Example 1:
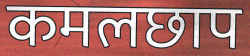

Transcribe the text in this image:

कमलछाप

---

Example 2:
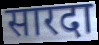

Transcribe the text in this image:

सारदा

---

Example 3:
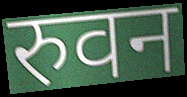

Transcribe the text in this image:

रुवन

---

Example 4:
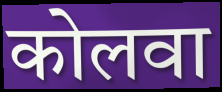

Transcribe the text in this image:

कोलवा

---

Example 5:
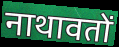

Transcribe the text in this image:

नाथावतों